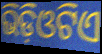
ଭିଡ଼ିଓଟିଏ